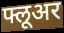
फ्लूअर